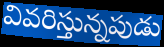
వివరిస్తున్నపుడు